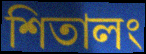
শিতালং